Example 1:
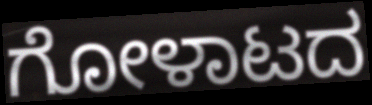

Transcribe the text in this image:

ಗೋಳಾಟದ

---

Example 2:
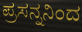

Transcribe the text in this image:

ಪ್ರಸನ್ನನಿಂದ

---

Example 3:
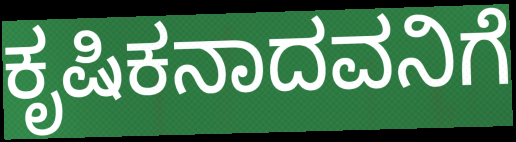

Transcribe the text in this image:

ಕೃಷಿಕನಾದವನಿಗೆ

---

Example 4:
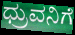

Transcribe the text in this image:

ಧ್ರುವನಿಗೆ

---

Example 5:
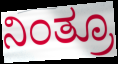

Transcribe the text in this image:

ನಿಂತ್ರೂ